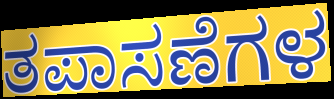
ತಪಾಸಣೆಗಳ